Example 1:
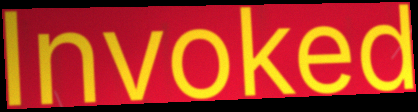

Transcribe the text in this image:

Invoked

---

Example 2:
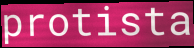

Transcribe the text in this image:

protista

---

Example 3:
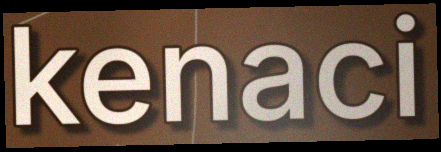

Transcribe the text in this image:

kenaci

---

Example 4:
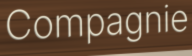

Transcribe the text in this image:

Compagnie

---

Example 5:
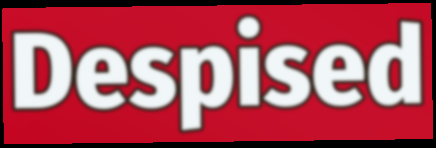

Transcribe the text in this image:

Despised